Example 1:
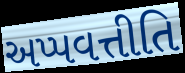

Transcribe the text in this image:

અપ્પવત્તીતિ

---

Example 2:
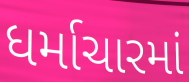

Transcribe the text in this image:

ધર્માચારમાં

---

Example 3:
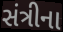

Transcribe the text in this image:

સંત્રીના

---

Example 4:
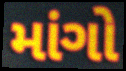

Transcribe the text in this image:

માંગો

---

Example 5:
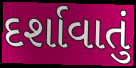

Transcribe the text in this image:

દર્શાવાતું